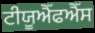
ਟੀਯੂਐੱਫਐੱਸ